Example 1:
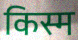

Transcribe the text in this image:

किस्म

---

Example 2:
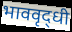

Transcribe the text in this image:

भाववृद्धी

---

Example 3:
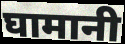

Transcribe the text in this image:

घामानी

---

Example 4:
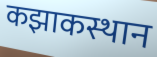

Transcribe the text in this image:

कझाकस्थान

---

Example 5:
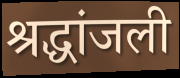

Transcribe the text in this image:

श्रद्धांजली